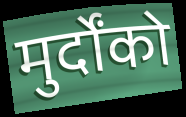
मुर्दोंको